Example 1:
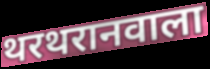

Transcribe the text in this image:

थरथरानवाला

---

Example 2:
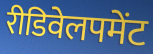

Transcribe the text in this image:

रीडिवेलपमेंट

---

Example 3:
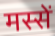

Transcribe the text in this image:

मस्सें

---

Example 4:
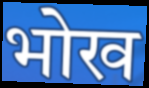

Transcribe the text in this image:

भोख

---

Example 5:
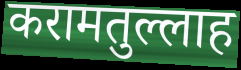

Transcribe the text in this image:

करामतुल्लाह